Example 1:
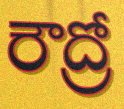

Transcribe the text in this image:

రౌద్రో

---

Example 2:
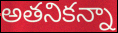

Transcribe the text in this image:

అతనికన్నా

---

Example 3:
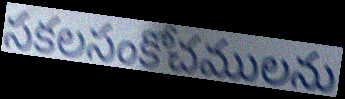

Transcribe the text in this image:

సకలసంకోచములను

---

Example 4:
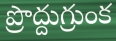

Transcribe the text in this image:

ప్రొద్దుగ్రుంక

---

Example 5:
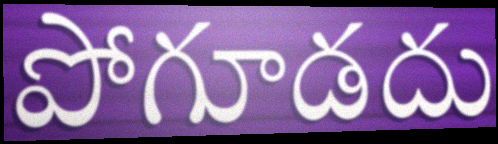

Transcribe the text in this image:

పోగూడదు